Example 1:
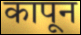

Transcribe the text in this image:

कापून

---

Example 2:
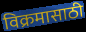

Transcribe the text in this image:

विक्रमासाठी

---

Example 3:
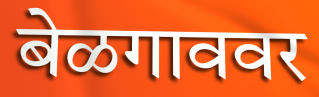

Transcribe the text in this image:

बेळगाववर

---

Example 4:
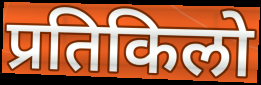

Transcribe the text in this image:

प्रतिकिलो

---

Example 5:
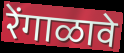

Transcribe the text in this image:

रेंगाळावे